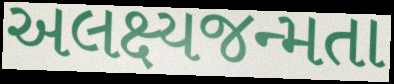
અલક્ષ્યજન્મતા